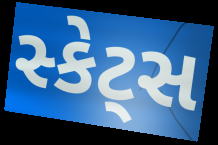
સ્કેટ્સ